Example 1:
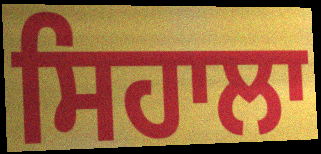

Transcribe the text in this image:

ਸਿਹਾਲਾ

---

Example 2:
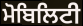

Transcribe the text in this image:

ਮੋਬਿਲਿਟੀ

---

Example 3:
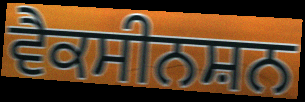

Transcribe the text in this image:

ਵੈਕਸੀਨਸ਼ਨ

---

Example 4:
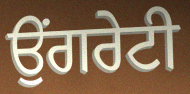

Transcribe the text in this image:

ਉਂਗਰੇਟੀ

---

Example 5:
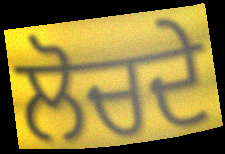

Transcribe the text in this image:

ਲੋਚਦੇ